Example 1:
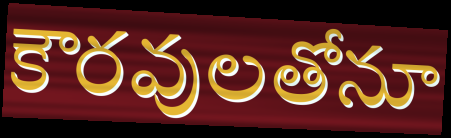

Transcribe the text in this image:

కౌరవులతోనూ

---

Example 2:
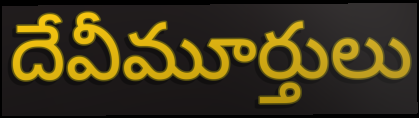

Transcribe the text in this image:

దేవీమూర్తులు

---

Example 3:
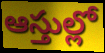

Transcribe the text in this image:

ఆస్తుల్లో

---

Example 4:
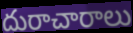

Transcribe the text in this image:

దురాచారాలు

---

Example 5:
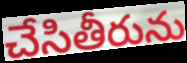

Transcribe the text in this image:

చేసితీరును